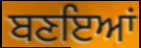
ਬਣਇਆਂ